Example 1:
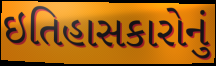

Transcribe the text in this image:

ઇતિહાસકારોનું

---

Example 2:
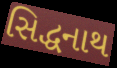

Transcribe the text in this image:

સિદ્ધનાથ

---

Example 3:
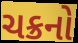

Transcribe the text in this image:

ચક્રનો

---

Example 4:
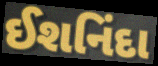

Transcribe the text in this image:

ઈશનિંદા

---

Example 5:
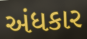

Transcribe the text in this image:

અંધકાર